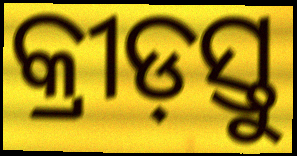
କ୍ରୀଡ଼ସ୍ତୁ